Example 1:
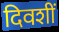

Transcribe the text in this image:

दिवशीं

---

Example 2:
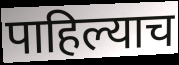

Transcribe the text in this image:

पाहिल्याच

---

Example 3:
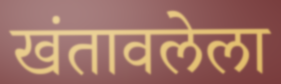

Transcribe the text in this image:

खंतावलेला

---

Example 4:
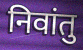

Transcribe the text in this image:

निवांतु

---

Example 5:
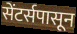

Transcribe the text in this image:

सेंटर्सपासून